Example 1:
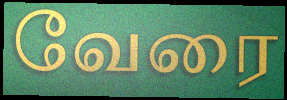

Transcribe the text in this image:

வேரை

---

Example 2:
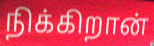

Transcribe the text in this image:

நிக்கிறான்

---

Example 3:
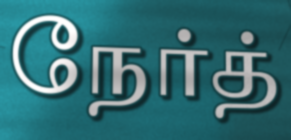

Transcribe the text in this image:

நேர்த்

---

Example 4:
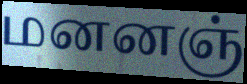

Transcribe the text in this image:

மனனஞ்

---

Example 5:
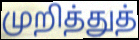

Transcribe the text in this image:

முறித்துத்